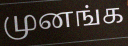
முனங்க